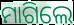
ମାଗିଲେ